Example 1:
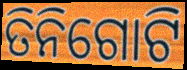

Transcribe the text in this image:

ତିନିଗୋଟି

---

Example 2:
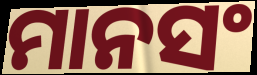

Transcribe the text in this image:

ମାନସଂ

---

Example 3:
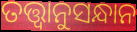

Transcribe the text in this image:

ତତ୍ତ୍ବାନୁସନ୍ଧାନ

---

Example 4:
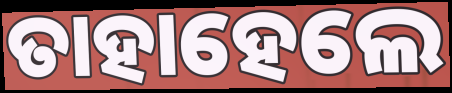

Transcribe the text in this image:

ତାହାହେଲେ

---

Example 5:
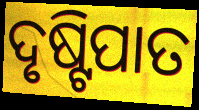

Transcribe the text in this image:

ଦୃଷ୍ଟିପାତ